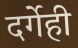
दर्गेही